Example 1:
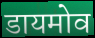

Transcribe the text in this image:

डायमोव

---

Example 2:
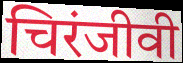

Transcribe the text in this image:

चिरंजीवी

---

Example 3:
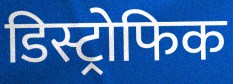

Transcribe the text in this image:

डिस्ट्रोफिक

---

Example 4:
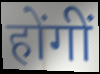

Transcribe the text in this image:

होंगीं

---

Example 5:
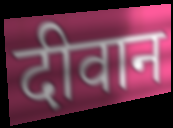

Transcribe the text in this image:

दीवान